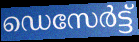
ഡെസേർട്ട്